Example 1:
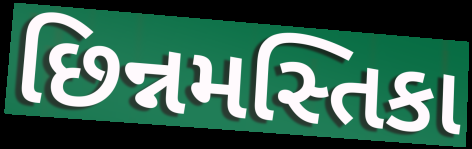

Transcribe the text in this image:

છિન્નમસ્તિકા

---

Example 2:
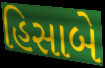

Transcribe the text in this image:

હિસાબે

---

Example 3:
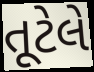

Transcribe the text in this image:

તૂટેલે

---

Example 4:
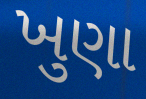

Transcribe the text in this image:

ખુણા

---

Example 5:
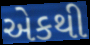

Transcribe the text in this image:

એકથી